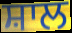
ਸ਼ਾਲ